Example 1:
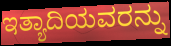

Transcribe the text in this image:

ಇತ್ಯಾದಿಯವರನ್ನು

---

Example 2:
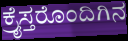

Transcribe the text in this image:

ಕ್ರೈಸ್ತರೊಂದಿಗಿನ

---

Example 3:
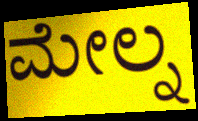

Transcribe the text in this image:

ಮೇಲ್ನ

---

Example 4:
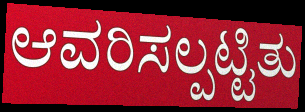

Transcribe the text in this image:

ಆವರಿಸಲ್ಪಟ್ಟಿತು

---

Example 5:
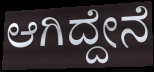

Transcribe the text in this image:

ಆಗಿದ್ದೇನೆ